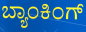
ಬ್ಯಾಂಕಿಂಗ್